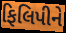
ફિલિપીને